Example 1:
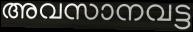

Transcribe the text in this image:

അവസാനവട്ട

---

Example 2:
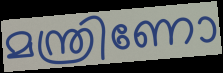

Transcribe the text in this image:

മന്ത്രിണോ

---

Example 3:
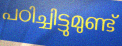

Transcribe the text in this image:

പഠിച്ചിട്ടുമുണ്ട്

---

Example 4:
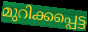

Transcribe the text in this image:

മുറിക്കപ്പെട്ട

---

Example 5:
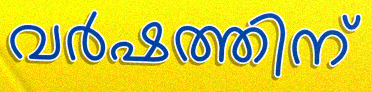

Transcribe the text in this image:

വർഷത്തിന്